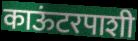
काऊंटरपाशी